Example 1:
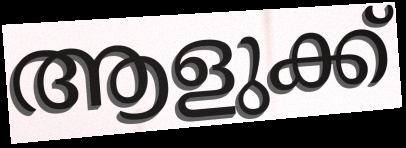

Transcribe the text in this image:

ആളുക്ക്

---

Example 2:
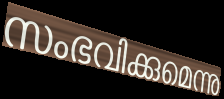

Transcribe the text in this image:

സംഭവിക്കുമെന്നു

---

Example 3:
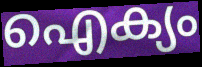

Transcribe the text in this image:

ഐക്യം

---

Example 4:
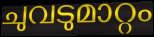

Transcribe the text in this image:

ചുവടുമാറ്റം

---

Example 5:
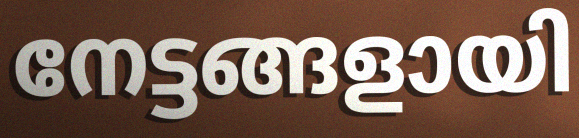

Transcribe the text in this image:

നേട്ടങ്ങളായി